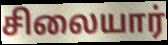
சிலையார்